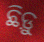
ଛିଡ଼ୁ